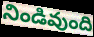
నిండివుంది